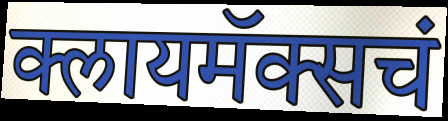
क्लायमॅक्सचं